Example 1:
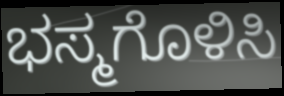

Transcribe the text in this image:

ಭಸ್ಮಗೊಳಿಸಿ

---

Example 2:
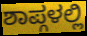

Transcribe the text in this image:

ಶಾಪ್ಗಳಲ್ಲಿ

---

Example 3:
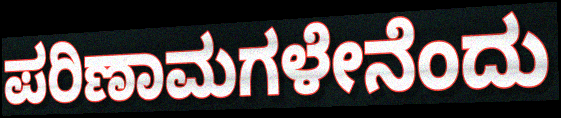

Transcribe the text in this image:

ಪರಿಣಾಮಗಳೇನೆಂದು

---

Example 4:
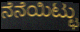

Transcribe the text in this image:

ನೆನೆಯಿಟ್ಟು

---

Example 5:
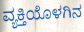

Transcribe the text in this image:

ವ್ಯಕ್ತಿಯೊಳಗಿನ